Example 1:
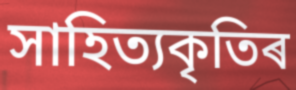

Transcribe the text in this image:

সাহিত্যকৃতিৰ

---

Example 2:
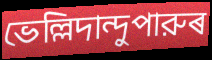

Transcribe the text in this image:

ভেল্লিদান্দুপাৰুৰ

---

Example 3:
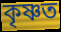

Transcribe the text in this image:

কৃষ্ণত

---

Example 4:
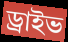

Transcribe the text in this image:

ড্ৰাইভ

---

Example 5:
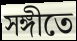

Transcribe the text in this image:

সঙ্গীতে